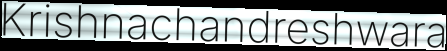
Krishnachandreshwara